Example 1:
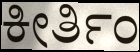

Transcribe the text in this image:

ಕೀರ್ತಿಂ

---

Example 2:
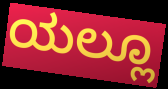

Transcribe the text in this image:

ಯಲ್ಲೂ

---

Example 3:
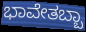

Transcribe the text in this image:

ಭಾವೇತಬ್ಬಾ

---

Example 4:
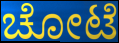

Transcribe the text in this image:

ಚೋಟೆ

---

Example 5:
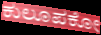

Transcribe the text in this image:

ಕುಲೂಪಕೋ